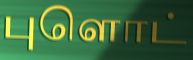
புளொட்